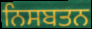
ਨਿਸਬਤਨ